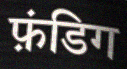
फ़ंडिग